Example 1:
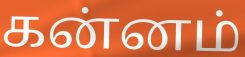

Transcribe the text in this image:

கன்னம்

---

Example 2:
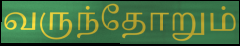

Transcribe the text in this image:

வருந்தோறும்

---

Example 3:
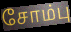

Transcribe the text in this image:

சோம்பு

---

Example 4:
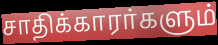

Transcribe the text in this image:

சாதிக்காரர்களும்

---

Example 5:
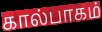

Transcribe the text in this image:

கால்பாகம்